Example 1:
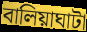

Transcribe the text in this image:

বালিয়াঘাটা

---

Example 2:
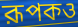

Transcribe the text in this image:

রূপকও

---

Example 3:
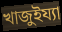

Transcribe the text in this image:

খাজুইয্যা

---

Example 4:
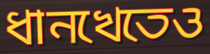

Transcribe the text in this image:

ধানখেতেও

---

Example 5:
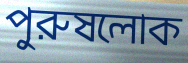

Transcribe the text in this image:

পুরুষলোক